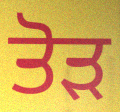
ਤੋੜ